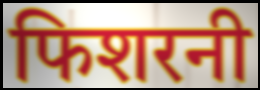
फिशरनी